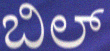
ಬಿಲ್